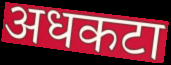
अधकटा